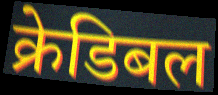
क्रेडिबल